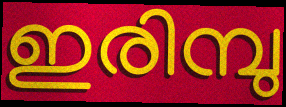
ഇരിമ്പു